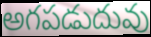
అగపడుదువు